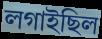
লগাইছিল